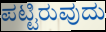
ಪಟ್ಟಿರುವುದು